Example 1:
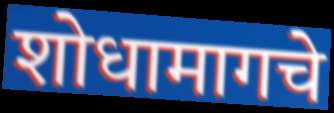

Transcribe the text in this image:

शोधामागचे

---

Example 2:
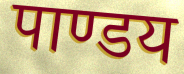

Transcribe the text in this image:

पाण्डय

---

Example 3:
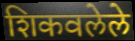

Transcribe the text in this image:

शिकवलेले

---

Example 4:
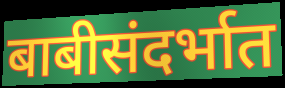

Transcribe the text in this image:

बाबीसंदर्भात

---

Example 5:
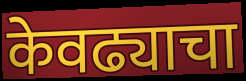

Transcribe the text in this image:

केवढ्याचा